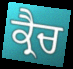
ਕ੍ਰੈਚ